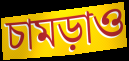
চামড়াও